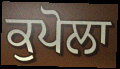
ਕੁਪੋਲਾ